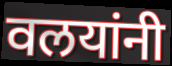
वलयांनी